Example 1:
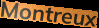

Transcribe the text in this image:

Montreux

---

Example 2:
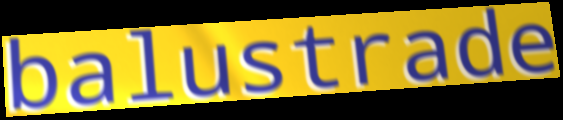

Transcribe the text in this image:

balustrade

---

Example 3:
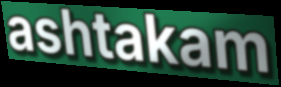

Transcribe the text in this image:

ashtakam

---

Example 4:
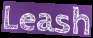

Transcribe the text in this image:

Leash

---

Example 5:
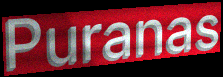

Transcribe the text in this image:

Puranas